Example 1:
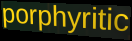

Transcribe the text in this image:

porphyritic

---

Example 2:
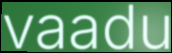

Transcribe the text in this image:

vaadu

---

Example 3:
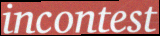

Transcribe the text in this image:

incontest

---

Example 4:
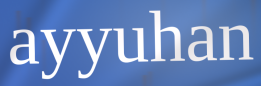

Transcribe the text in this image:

ayyuhan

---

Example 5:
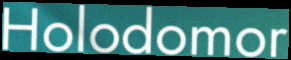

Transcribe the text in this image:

Holodomor